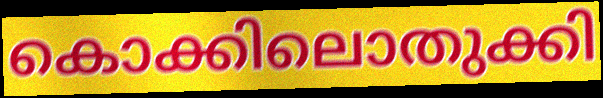
കൊക്കിലൊതുക്കി